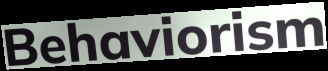
Behaviorism